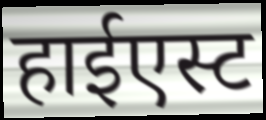
हाईएस्ट